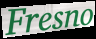
Fresno